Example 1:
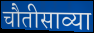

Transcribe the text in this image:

चौतीसाव्या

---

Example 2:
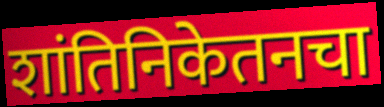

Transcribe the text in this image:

शांतिनिकेतनचा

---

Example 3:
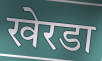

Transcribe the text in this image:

खेरडा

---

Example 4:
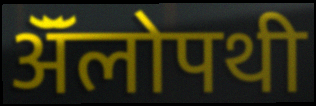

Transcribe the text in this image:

ॲॅलोपथी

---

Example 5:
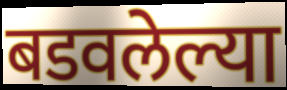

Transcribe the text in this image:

बडवलेल्या